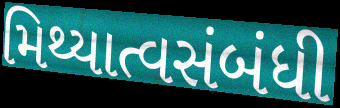
મિથ્યાત્વસંબંધી